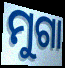
ମୁଗା